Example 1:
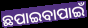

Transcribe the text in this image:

ଛପାଇବାପାଇଁ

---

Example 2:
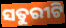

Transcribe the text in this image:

ସତୁରୀଟି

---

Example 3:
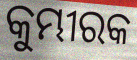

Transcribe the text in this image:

କୁମ୍ଭୀରକ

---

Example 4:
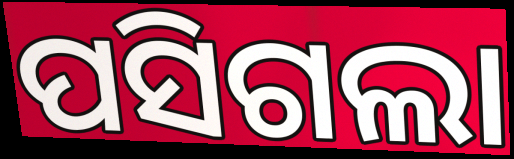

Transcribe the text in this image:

ପସିଗଲା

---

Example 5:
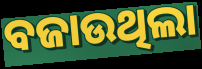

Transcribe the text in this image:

ବଜାଉଥିଲା